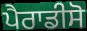
ਪੈਰਾਡੀਸੋ